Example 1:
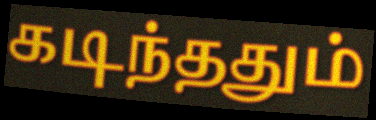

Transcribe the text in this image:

கடிந்ததும்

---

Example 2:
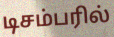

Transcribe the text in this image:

டிசம்பரில்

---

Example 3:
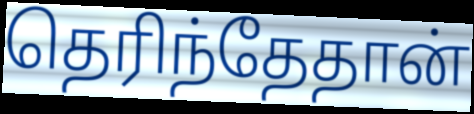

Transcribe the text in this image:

தெரிந்தேதான்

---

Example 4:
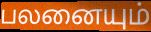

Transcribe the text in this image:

பலனையும்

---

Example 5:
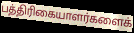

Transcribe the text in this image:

பத்திரிகையாளர்களைக்